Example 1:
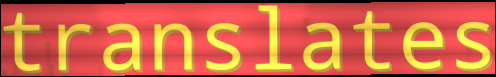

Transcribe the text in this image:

translates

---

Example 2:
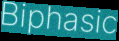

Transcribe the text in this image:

Biphasic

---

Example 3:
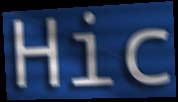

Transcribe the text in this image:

Hic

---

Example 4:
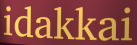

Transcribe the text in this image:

idakkai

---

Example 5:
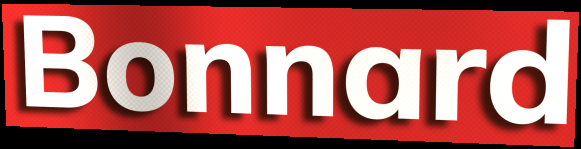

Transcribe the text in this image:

Bonnard